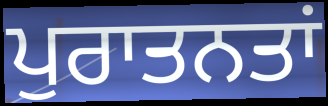
ਪੁਰਾਤਨਤਾਂ